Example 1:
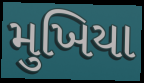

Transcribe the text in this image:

મુખિયા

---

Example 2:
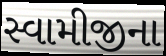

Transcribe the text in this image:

સ્વામીજીના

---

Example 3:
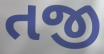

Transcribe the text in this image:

તજી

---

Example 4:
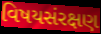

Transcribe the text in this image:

વિષયસંરક્ષણ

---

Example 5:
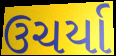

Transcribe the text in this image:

ઉચર્યા